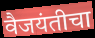
वैजयंतीचा